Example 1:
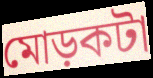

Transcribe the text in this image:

মোড়কটা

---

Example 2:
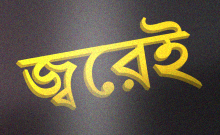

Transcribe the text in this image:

জ্বরেই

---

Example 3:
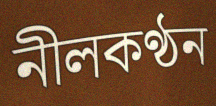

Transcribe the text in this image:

নীলকণ্ঠন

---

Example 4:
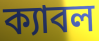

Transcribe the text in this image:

ক্যাবল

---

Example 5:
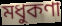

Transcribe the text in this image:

মধুকণা